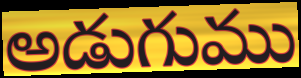
అడుగుము